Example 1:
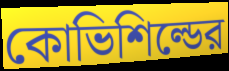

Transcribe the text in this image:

কোভিশিল্ডের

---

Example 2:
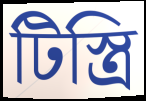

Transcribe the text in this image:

টিস্ত্রি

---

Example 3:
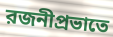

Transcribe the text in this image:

রজনীপ্রভাতে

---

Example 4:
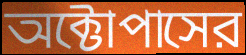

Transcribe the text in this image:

অক্টোপাসের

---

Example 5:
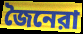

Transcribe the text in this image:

জৈনেরা